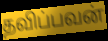
தவிப்பவன்